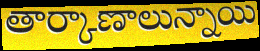
తార్కాణాలున్నాయి